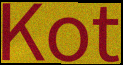
Kot